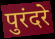
पुरंदरे